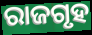
ରାଜଗୃହ